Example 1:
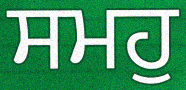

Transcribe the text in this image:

ਸਮਹੁ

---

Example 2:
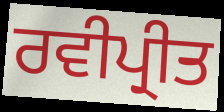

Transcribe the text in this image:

ਰਵੀਪ੍ਰੀਤ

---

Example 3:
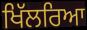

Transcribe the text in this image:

ਖਿੱਲਰਿਆ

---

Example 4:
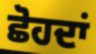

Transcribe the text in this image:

ਛੋਹਦਾਂ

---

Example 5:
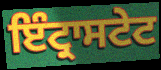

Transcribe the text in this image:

ਇੰਟ੍ਰਾਸਟੇਟ